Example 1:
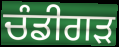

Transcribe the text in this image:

ਚੰਡੀਗੜ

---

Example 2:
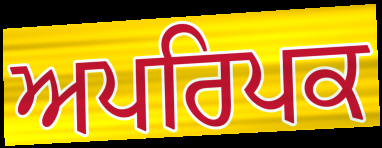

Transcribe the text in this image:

ਅਪਰਿਪਕ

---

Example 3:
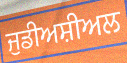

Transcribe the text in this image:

ਜੁਡੀਅਸ਼ੀਅਲ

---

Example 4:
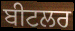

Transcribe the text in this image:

ਬੀਟਲਰ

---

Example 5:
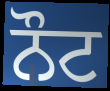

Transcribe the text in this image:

ਨੌਟ